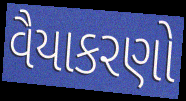
વૈયાકરણો